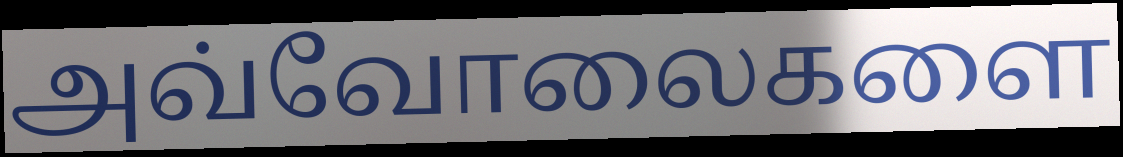
அவ்வோலைகளை